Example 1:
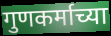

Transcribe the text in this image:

गुणकर्माच्या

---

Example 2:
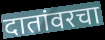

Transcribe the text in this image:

दातांवरचा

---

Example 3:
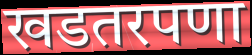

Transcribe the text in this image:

खडतरपणा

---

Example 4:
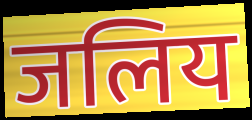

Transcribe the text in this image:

जलिय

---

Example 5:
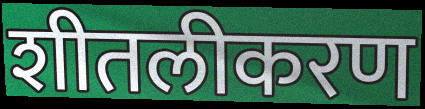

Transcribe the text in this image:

शीतलीकरण